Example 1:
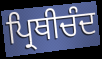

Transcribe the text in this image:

ਪ੍ਰਿਥੀਚੰਦ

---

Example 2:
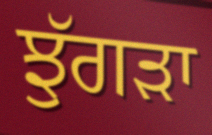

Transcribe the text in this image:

ਝੁੱਗੜਾ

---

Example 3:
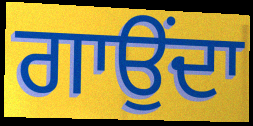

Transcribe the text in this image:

ਗਾਉਂਦਾ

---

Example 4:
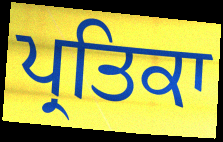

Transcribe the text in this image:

ਪ੍ਰਤਿਕਾ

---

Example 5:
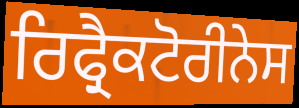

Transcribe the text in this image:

ਰਿਫ੍ਰੈਕਟੋਰੀਨੇਸ